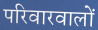
परिवारवालों